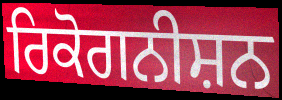
ਰਿਕੋਗਨੀਸ਼ਨ